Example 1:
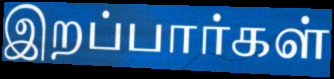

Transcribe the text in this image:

இறப்பார்கள்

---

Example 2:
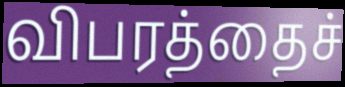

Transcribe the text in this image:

விபரத்தைச்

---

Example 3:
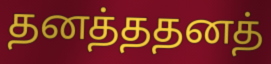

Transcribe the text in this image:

தனத்ததனத்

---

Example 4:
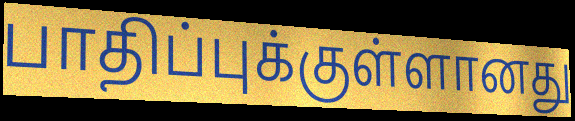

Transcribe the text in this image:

பாதிப்புக்குள்ளானது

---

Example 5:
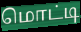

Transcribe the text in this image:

மொட்டி